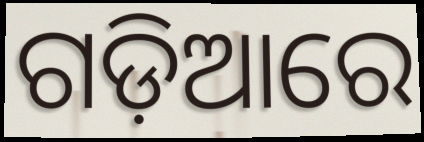
ଗଡ଼ିଆରେ